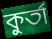
কুৰ্তা